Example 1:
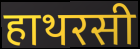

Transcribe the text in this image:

हाथरसी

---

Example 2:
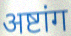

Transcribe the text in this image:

अष्टांग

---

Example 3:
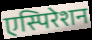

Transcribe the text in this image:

एस्पिरेशन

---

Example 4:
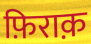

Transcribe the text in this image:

फ़िराक़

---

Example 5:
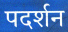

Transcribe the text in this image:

पदर्शन